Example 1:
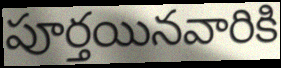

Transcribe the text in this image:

పూర్తయినవారికి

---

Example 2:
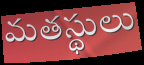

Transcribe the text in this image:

మతస్థులు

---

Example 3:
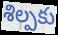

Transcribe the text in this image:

శిల్పకు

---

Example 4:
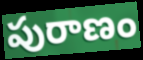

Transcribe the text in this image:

పురాణం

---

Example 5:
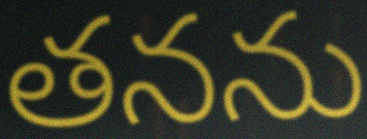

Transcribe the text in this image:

తనను